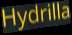
Hydrilla